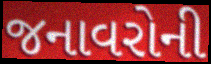
જનાવરોની